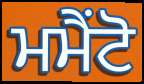
ਮਮੈਂਟੋ